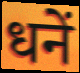
धनें